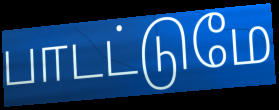
பாடட்டுமே